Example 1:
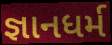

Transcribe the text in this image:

જ્ઞાનધર્મ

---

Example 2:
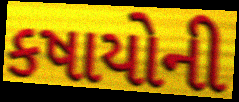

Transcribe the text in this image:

કષાયોની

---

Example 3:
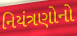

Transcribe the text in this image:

નિયંત્રણોનો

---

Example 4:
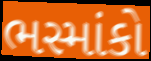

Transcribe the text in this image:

ભસ્માંકો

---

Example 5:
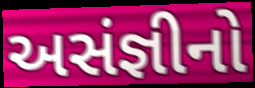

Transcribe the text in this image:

અસંજ્ઞીનો